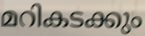
മറികടക്കും